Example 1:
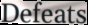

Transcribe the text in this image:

Defeats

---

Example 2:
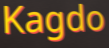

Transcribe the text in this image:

Kagdo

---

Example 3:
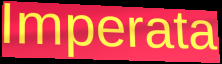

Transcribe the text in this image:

Imperata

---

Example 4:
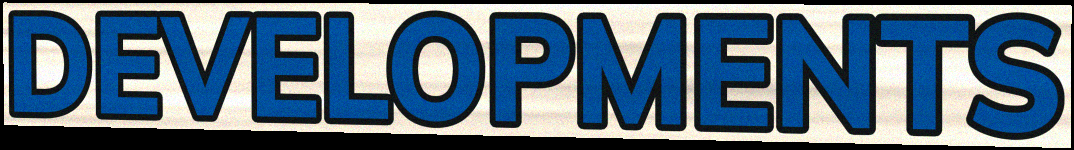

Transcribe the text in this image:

DEVELOPMENTS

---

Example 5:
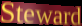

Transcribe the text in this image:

Steward